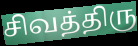
சிவத்திரு